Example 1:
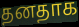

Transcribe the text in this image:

தனதாக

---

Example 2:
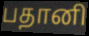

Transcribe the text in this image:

பதானி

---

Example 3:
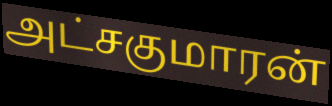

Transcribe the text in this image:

அட்சகுமாரன்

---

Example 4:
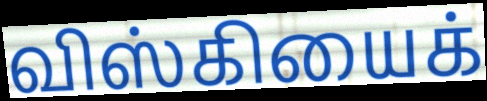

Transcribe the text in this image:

விஸ்கியைக்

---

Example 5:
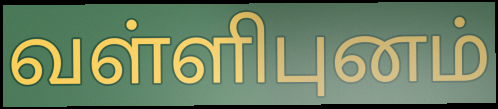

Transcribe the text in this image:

வள்ளிபுனம்